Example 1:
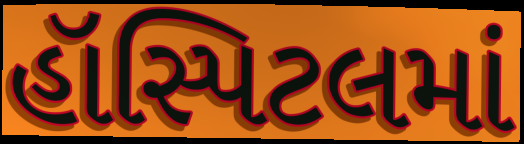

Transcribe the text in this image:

હૉસ્પિટલમાં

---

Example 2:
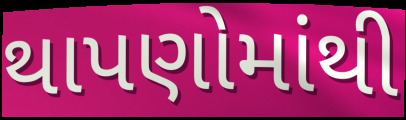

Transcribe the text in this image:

થાપણોમાંથી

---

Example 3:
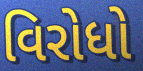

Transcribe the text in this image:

વિરોધો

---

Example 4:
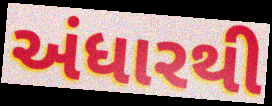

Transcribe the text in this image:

અંધારથી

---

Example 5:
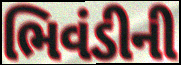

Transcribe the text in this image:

ભિવંડીની